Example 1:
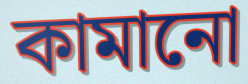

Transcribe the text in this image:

কামানো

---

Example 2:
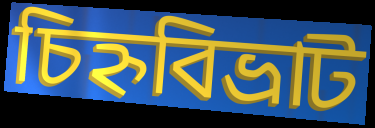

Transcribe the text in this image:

চিহ্নবিভ্রাট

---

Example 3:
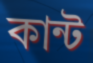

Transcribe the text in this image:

কান্ট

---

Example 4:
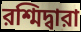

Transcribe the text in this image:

রশ্মিদ্বারা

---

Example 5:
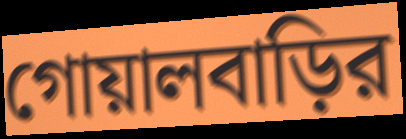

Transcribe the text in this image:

গোয়ালবাড়ির